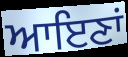
ਆਇਣਾਂ